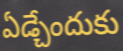
ఏడ్చేందుకు